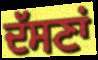
ਦੱਸਣਾਂ